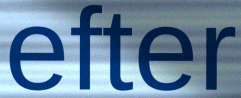
efter